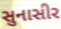
સુનાસીર